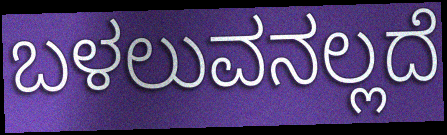
ಬಳಲುವನಲ್ಲದೆ